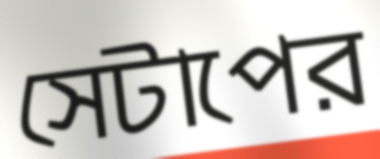
সেটাপের